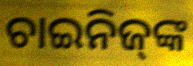
ଚାଇନିଜ୍‌ଙ୍କ